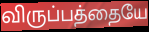
விருப்பத்தையே